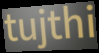
tujthi